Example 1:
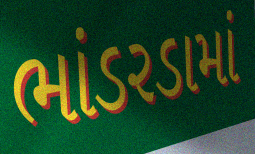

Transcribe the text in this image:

ભાંડરડામાં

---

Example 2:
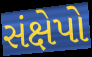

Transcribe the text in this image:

સંક્ષેપો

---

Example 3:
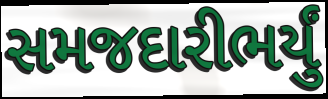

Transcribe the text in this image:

સમજદારીભર્યું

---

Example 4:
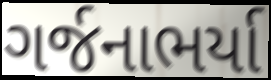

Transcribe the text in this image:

ગર્જનાભર્યા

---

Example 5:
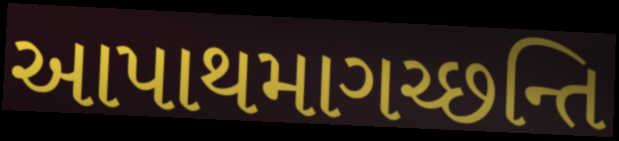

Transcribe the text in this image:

આપાથમાગચ્છન્તિ